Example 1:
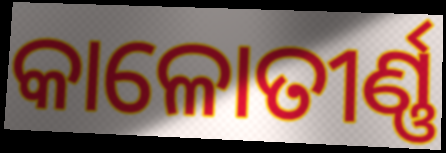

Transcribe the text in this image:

କାଳୋତୀର୍ଣ୍ଣ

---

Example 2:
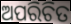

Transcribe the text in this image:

ଅପରିଚିତ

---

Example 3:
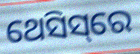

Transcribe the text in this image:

ଥେସିସ୍‌ରେ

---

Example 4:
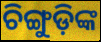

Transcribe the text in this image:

ଚିଙ୍ଗୁଡ଼ିଙ୍କ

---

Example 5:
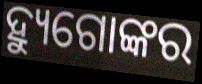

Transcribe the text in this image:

ହ୍ୟୁଗୋଙ୍କର